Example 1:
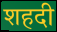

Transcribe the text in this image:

शहदी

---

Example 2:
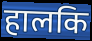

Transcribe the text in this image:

हालकि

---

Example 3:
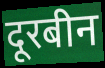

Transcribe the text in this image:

दूरबीन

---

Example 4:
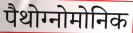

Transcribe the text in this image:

पैथोग्नोमोनिक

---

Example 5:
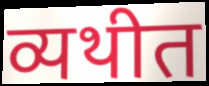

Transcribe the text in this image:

व्यथीत